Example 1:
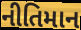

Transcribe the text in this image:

નીતિમાન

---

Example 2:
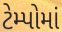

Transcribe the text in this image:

ટેમ્પોમાં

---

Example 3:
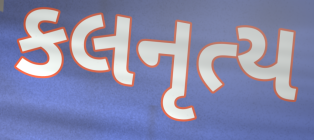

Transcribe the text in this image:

કલનૃત્ય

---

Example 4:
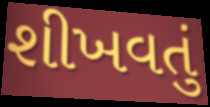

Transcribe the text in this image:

શીખવતું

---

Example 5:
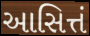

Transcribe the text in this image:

આસિત્તં